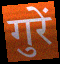
गुरें